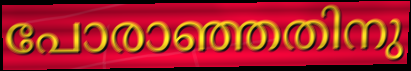
പോരാഞ്ഞതിനു